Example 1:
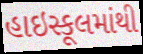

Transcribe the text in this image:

હાઇસ્કૂલમાંથી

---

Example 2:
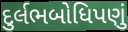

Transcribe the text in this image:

દુર્લભબોધિપણું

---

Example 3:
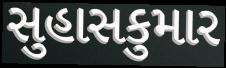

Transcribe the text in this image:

સુહાસકુમાર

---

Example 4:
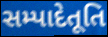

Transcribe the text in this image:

સમ્પાદેતૂતિ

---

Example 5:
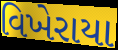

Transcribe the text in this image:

વિખેરાયા